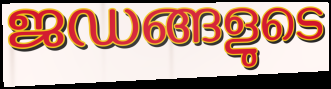
ജഡങ്ങളുടെ